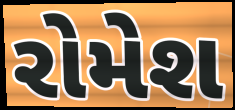
રોમેશ